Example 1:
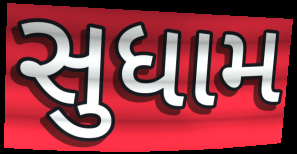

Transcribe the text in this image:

સુધામ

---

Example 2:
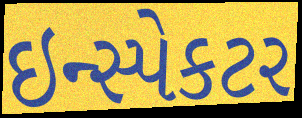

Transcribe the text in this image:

ઇન્સ્પેકટર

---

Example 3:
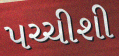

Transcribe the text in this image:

પચ્ચીશી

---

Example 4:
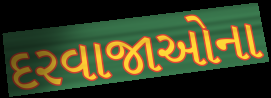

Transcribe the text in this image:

દરવાજાઓના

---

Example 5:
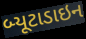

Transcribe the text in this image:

બ્યૂટાડાઇન